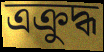
ত্রক্রুদ্ধ